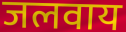
जलवाय